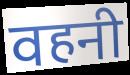
वहनी